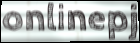
onlinepj